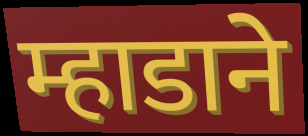
म्हाडाने